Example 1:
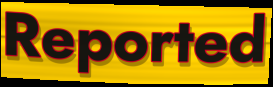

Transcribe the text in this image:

Reported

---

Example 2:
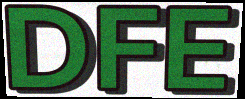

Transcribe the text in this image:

DFE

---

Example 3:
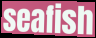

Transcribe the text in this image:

seafish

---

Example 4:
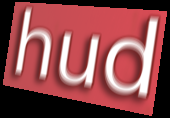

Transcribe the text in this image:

hud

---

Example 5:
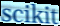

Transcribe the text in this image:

scikit